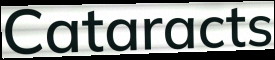
Cataracts